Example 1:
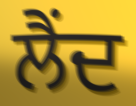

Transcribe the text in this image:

ਲੈਂਦ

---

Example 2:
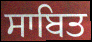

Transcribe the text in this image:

ਸਾਬਿਤ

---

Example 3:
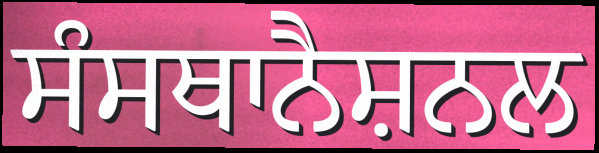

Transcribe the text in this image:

ਸੰਸਥਾਨੈਸ਼ਨਲ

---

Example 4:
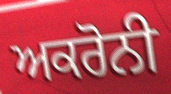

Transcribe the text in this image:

ਅਕਰੋਨੀ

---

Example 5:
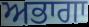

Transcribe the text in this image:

ਅਭਾਗਾ